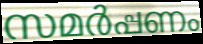
സമർപ്പണം